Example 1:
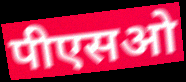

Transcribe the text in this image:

पीएसओ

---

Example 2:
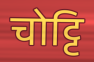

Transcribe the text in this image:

चोट्टि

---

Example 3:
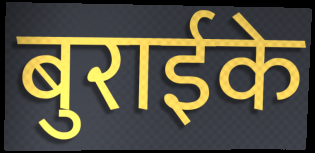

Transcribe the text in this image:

बुराईके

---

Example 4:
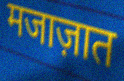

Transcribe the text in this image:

मजाज़ात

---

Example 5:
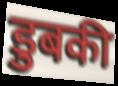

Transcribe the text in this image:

डुबकी